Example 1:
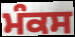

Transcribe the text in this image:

ਮੰਕਸ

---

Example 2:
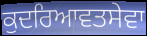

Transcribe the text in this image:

ਕੁਦਰਿਆਵਤਸੇਵਾ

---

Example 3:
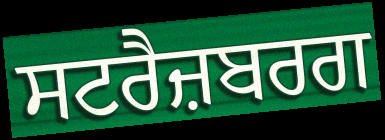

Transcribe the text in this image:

ਸਟਰੈਜ਼ਬਰਗ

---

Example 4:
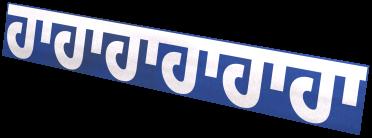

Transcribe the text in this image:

ਹਾਹਾਹਾਹਾਹਾਹਾ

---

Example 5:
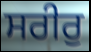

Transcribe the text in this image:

ਸਰੀਰੁ